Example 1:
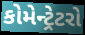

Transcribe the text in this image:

કોમેન્ટ્રેટરો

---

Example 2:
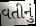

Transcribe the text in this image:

વતીનું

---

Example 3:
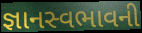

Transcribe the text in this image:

જ્ઞાનસ્વભાવની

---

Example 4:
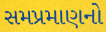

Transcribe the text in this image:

સમપ્રમાણનો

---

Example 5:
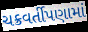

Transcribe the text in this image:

ચક્રવર્તીપણામાં